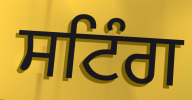
ਸਟਿੰਗ